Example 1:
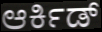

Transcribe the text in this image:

ಆರ್ಕಿಡ್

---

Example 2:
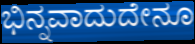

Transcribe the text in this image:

ಭಿನ್ನವಾದುದೇನೂ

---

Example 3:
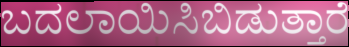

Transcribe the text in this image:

ಬದಲಾಯಿಸಿಬಿಡುತ್ತಾರೆ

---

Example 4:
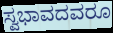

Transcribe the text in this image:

ಸ್ವಭಾವದವರೂ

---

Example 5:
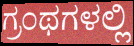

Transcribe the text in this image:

ಗ್ರಂಥಗಳಲ್ಲಿ